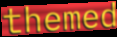
themed